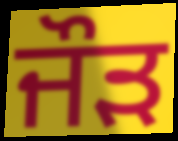
ਜੌੜ